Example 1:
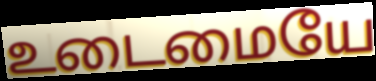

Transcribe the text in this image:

உடைமையே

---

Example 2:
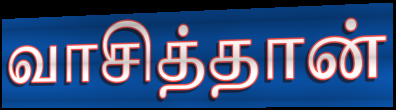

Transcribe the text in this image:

வாசித்தான்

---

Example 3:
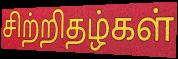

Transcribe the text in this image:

சிற்றிதழ்கள்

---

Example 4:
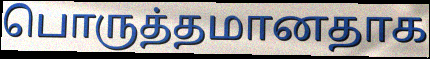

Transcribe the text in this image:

பொருத்தமானதாக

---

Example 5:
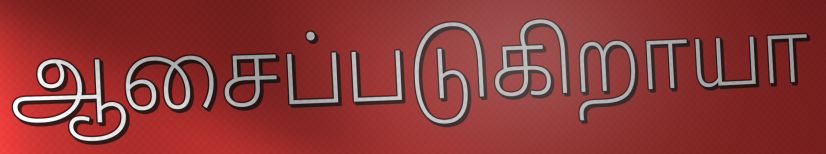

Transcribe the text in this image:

ஆசைப்படுகிறாயா